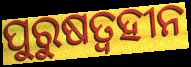
ପୁରୁଷତ୍ୱହୀନ